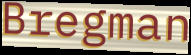
Bregman